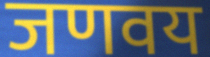
जणवय